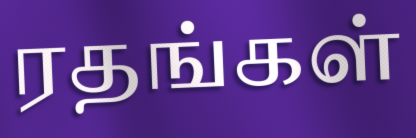
ரதங்கள்